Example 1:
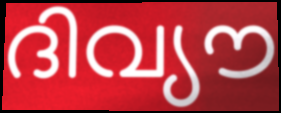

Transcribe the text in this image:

ദിവ്യൗ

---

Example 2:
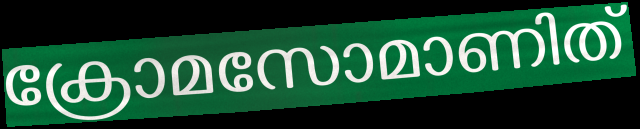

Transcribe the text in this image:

ക്രോമസോമാണിത്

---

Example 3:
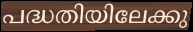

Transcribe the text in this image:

പദ്ധതിയിലേക്കു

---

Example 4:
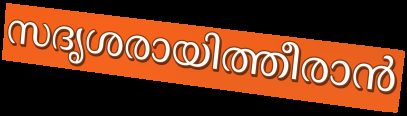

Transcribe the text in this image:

സദൃശരായിത്തീരാൻ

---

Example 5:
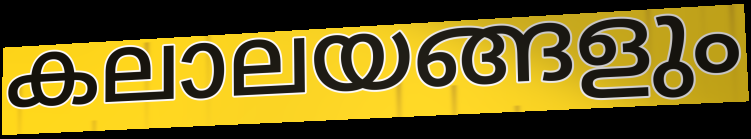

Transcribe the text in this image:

കലാലയങ്ങളും